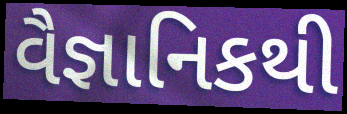
વૈજ્ઞાનિકથી